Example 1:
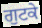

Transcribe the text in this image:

ਗੁਟਕੇ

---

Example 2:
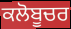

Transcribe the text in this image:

ਕਲੋਬੂਚਰ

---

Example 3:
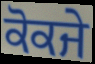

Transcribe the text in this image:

ਕੋਕਜੇ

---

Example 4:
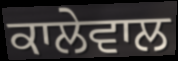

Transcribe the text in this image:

ਕਾਲੇਵਾਲ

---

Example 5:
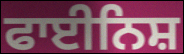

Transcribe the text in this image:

ਫਾਈਨਿਸ਼